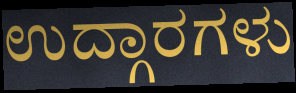
ಉದ್ಗಾರಗಳು